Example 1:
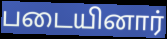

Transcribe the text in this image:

படையினார்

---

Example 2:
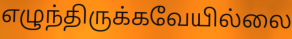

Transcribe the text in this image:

எழுந்திருக்கவேயில்லை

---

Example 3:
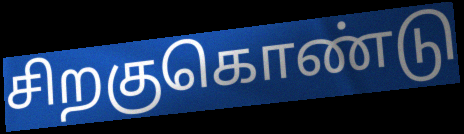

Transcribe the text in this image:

சிறகுகொண்டு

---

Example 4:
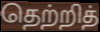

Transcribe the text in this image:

தெற்றித்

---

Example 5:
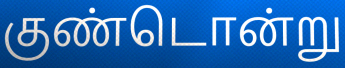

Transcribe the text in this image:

குண்டொன்று